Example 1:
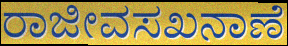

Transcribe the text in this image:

ರಾಜೀವಸಖನಾಣೆ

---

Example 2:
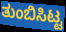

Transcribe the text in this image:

ತುಂಬಿಸಿಟ್ಟ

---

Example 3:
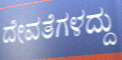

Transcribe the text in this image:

ದೇವತೆಗಳದ್ದು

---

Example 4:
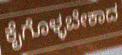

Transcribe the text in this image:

ಕೈಗೊಳ್ಳಬೇಕಾದ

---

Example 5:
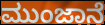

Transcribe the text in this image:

ಮುಂಜಾನೆ